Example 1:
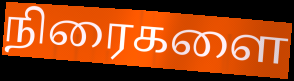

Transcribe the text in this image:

நிரைகளை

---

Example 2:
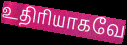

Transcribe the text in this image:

உதிரியாகவே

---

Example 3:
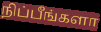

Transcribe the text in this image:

நிப்பீங்களா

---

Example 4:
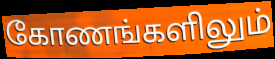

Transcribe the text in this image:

கோணங்களிலும்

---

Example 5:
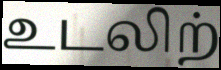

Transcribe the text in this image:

உடலிற்